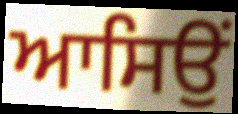
ਆਸਿਉਂ